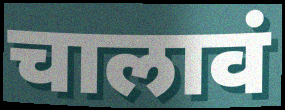
चालावं